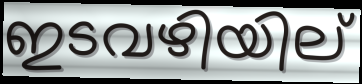
ഇടവഴിയില്